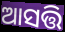
ଆସତ୍ତି